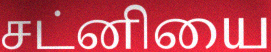
சட்னியை